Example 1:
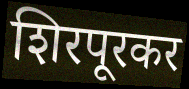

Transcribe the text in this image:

शिरपूरकर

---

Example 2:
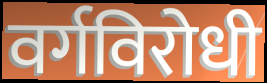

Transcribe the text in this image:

वर्गविरोधी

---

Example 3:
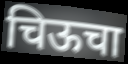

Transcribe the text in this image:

चिऊचा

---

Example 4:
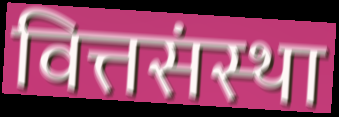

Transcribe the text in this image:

वित्तसंस्था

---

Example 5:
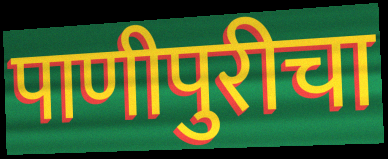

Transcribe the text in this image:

पाणीपुरीचा